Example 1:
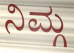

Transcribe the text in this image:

ನಿಮ್ಗ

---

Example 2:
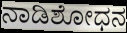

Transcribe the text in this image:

ನಾಡಿಶೋಧನ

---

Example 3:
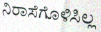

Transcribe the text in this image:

ನಿರಾಸೆಗೊಳಿಸಿಲ್ಲ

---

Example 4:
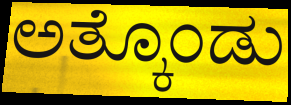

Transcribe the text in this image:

ಅತ್ಕೊಂಡು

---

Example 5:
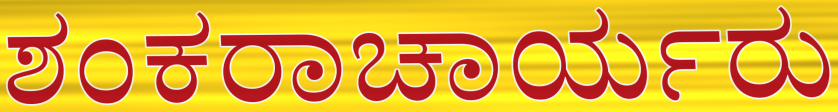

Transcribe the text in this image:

ಶಂಕರಾಚಾರ್ಯರು